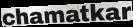
chamatkar